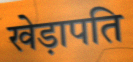
खेड़ापति